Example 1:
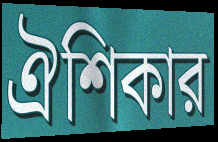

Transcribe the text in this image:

ঐশিকার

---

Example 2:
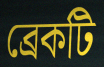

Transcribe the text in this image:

ব্রেকটি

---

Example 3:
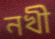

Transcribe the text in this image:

নখী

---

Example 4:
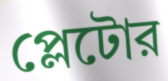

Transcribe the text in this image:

প্লেটোর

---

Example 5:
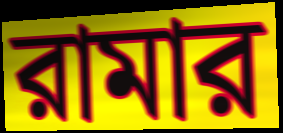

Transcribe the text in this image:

রামার